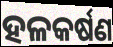
ହଳକର୍ଷଣ